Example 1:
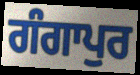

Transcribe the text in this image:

ਗੰਗਾਪੁਰ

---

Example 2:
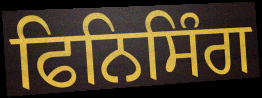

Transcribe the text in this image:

ਫਿਨਿਸਿੰਗ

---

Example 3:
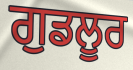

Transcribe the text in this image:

ਗੁਡਲੂਰ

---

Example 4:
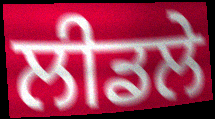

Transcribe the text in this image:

ਲੀਡਲੇ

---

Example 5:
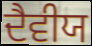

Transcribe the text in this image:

ਦੈਵੀਯ